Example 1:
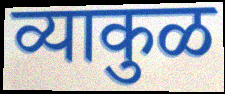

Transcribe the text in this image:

व्याकुळ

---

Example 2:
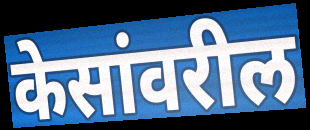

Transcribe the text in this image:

केसांवरील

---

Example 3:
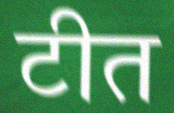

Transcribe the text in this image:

टीत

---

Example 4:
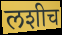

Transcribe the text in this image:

लशीच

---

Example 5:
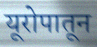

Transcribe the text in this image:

यूरोपातून